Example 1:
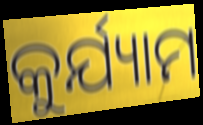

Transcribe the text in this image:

କୁର୍ଯ୍ୟାମ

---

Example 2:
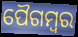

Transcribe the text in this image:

ପୈଗମ୍ବର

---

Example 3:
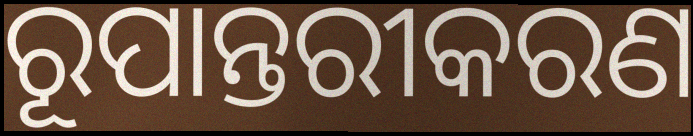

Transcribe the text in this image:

ରୂପାନ୍ତରୀକରଣ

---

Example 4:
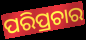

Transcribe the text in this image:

ପରିପ୍ରଚାର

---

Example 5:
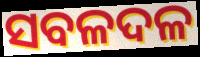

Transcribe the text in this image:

ସବଳଦଳ